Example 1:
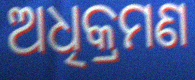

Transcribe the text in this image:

ଅଧିକ୍ରମଣ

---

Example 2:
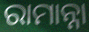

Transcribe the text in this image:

ରାମାନ୍ନା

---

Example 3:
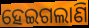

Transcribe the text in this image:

ହେଇଗଲାଣି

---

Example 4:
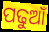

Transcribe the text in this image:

ପଢୁଆଁ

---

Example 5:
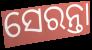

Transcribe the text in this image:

ସେରନ୍ତା